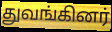
துவங்கினர்